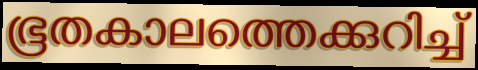
ഭൂതകാലത്തെക്കുറിച്ച്